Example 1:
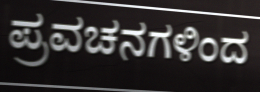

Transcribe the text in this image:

ಪ್ರವಚನಗಳಿಂದ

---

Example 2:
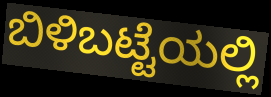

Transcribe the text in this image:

ಬಿಳಿಬಟ್ಟೆಯಲ್ಲಿ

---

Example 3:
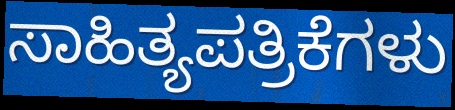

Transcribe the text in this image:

ಸಾಹಿತ್ಯಪತ್ರಿಕೆಗಳು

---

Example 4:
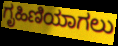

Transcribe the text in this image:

ಗೃಹಿಣಿಯಾಗಲು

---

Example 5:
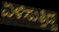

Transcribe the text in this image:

ಏಳಿಸುತ್ತಿದ್ದ